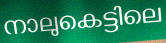
നാലുകെട്ടിലെ